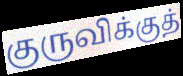
குருவிக்குத்